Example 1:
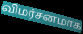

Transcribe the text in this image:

விமர்சனமாக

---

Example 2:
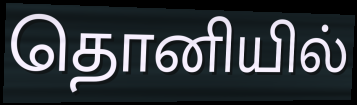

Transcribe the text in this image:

தொனியில்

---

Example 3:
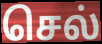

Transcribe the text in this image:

செல்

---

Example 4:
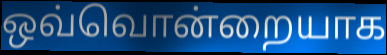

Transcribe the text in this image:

ஒவ்வொன்றையாக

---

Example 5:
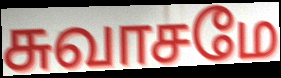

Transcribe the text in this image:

சுவாசமே